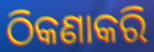
ଠିକଣାକରି